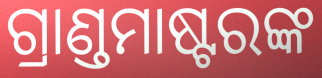
ଗ୍ରାଣ୍ଡମାଷ୍ଟରଙ୍କ